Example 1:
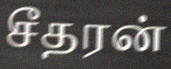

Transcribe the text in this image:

சீதரன்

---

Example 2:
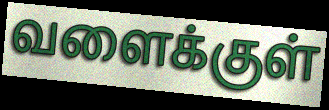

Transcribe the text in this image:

வளைக்குள்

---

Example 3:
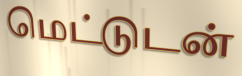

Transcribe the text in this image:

மெட்டுடன்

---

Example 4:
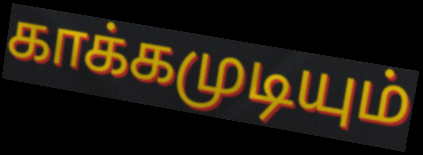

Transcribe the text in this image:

காக்கமுடியும்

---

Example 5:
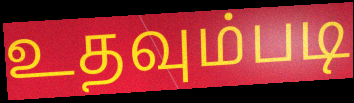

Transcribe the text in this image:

உதவும்படி